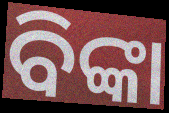
ବିଙ୍କା